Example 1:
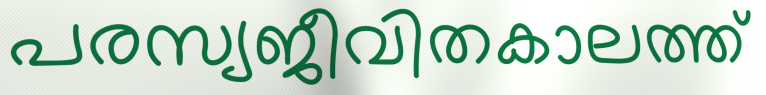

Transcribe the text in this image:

പരസ്യജീവിതകാലത്ത്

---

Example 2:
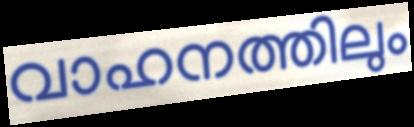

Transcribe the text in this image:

വാഹനത്തിലും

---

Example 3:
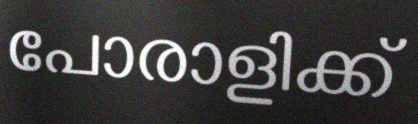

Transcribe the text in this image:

പോരാളിക്ക്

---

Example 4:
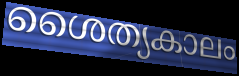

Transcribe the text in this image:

ശൈത്യകാലം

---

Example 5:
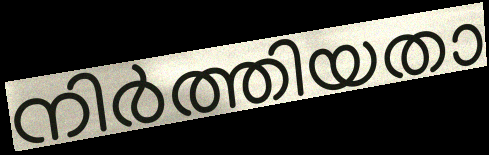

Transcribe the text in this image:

നിർത്തിയതാ